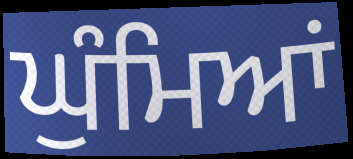
ਘੁੰਮਿਆਂ